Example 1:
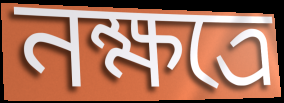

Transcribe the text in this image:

নক্ষত্রে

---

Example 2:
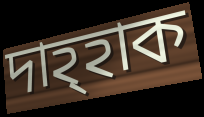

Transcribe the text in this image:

দাহ্হাক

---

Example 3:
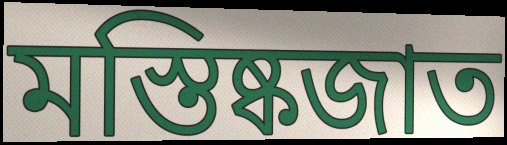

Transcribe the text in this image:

মস্তিষ্কজাত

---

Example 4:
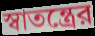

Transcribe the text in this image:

স্বাতন্ত্রের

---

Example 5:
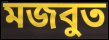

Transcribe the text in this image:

মজবুত